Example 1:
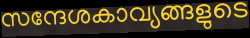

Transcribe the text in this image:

സന്ദേശകാവ്യങ്ങളുടെ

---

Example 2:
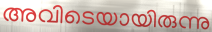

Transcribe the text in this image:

അവിടെയായിരുന്നു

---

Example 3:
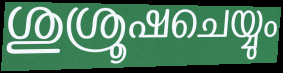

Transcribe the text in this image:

ശുശ്രൂഷചെയ്യും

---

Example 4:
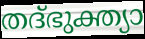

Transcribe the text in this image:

തദ്ഭുക്ത്യാ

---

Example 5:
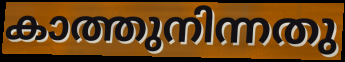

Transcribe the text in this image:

കാത്തുനിന്നതു